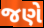
જણે